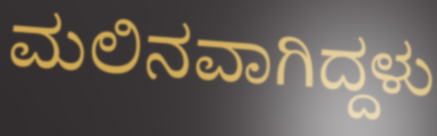
ಮಲಿನವಾಗಿದ್ದಳು